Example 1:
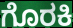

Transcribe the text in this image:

ಗೊರಕಿ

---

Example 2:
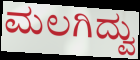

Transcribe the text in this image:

ಮಲಗಿದ್ವು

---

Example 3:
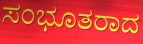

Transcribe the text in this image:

ಸಂಭೂತರಾದ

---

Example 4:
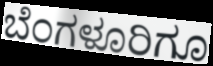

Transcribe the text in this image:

ಬೆಂಗಳೂರಿಗೂ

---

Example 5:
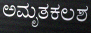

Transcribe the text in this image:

ಅಮೃತಕಲಶ